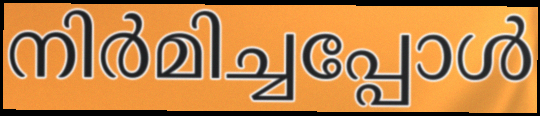
നിർമിച്ചപ്പോൾ